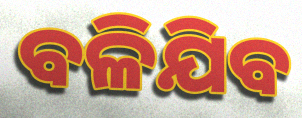
ବଳିଯିବ